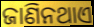
ଜାଣିନଥାଏ